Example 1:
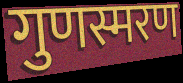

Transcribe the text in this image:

गुणस्मरण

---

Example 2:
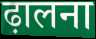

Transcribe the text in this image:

ढ़ालना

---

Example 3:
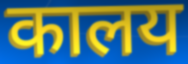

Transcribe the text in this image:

कालय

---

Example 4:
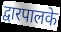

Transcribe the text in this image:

द्वारपालके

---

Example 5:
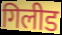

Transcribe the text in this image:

गिलीड